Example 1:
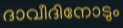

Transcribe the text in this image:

ദാവീദിനോടും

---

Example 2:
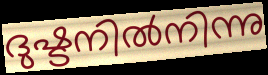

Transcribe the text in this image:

ദുഷ്ടനിൽനിന്നു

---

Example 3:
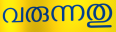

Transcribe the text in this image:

വരുന്നതു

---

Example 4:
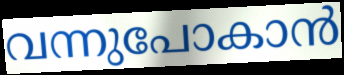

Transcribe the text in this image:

വന്നുപോകാൻ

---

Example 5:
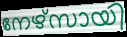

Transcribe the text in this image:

നേഴ്സായി